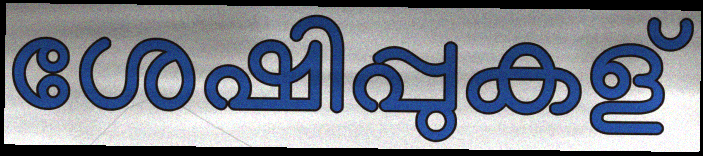
ശേഷിപ്പുകള്